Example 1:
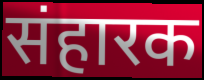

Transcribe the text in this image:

संहारक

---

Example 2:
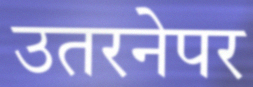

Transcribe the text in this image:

उतरनेपर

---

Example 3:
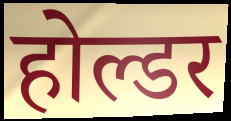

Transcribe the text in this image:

होल्डर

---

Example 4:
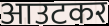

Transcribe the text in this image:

आउटकर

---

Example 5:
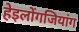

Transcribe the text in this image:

हेइलोंगजियांग